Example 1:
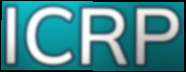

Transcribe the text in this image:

ICRP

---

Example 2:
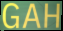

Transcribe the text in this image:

GAH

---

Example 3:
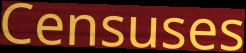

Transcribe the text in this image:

Censuses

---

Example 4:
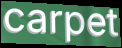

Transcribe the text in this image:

carpet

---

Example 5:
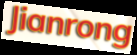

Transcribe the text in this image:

Jianrong